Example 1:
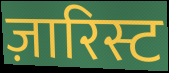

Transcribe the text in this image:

ज़ारिस्ट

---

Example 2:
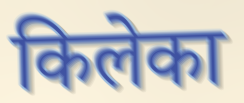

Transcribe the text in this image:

किलेका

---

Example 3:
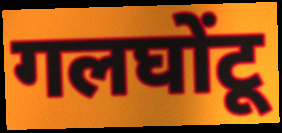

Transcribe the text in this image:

गलघोंटू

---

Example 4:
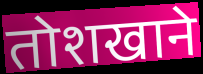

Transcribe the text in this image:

तोशखाने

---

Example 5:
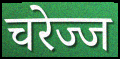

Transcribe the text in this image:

चरेज्ज